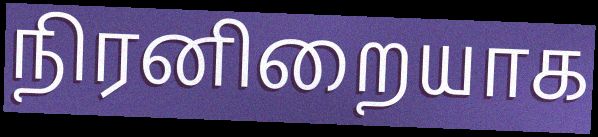
நிரனிறையாக